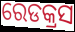
ରେଡକ୍ରସ